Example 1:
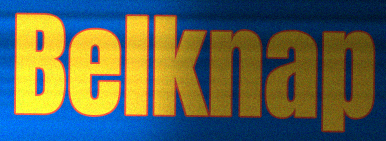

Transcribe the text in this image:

Belknap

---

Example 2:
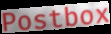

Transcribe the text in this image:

Postbox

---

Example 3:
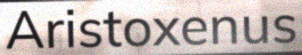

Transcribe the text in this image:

Aristoxenus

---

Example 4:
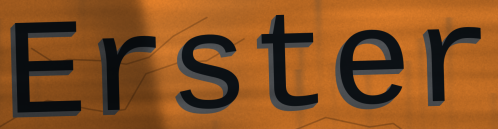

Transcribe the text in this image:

Erster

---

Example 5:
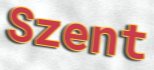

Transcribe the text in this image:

Szent